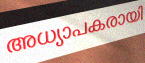
അധ്യാപകരായി